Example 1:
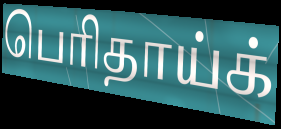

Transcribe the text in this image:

பெரிதாய்க்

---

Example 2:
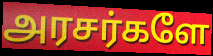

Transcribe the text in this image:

அரசர்களே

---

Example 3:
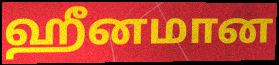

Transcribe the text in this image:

ஹீனமான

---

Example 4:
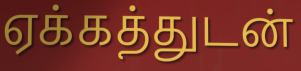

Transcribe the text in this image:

ஏக்கத்துடன்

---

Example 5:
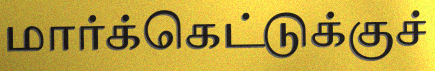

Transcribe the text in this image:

மார்க்கெட்டுக்குச்